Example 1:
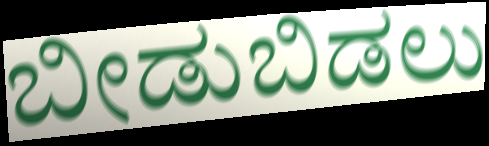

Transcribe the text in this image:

ಬೀಡುಬಿಡಲು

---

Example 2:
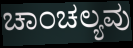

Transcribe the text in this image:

ಚಾಂಚಲ್ಯವು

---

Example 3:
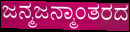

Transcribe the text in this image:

ಜನ್ಮಜನ್ಮಾಂತರದ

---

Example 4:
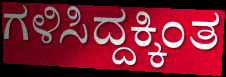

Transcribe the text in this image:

ಗಳಿಸಿದ್ದಕ್ಕಿಂತ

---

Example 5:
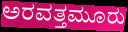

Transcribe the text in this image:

ಅರವತ್ತಮೂರು